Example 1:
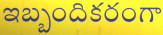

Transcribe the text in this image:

ఇబ్బందికరంగా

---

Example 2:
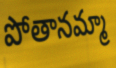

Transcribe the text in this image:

పోతానమ్మా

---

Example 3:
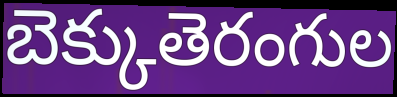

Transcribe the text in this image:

బెక్కుతెరంగుల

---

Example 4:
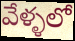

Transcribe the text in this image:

వేళ్ళలో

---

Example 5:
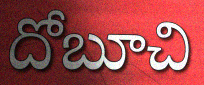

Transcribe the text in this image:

దోబూచి